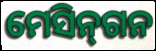
ମେସିନ୍‌ଗନ